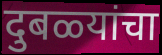
दुबळ्यांचा